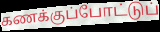
கணக்குப்போட்டுப்